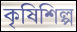
কৃষিশিল্প